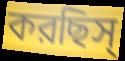
করছিস্